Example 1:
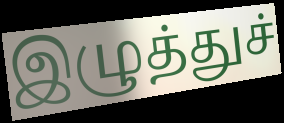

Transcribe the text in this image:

இழுத்துச்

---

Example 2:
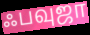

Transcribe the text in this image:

ஃபவுஜா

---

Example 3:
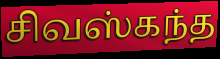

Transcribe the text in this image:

சிவஸ்கந்த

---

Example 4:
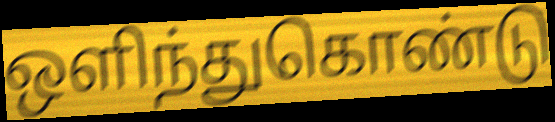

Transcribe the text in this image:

ஒளிந்துகொண்டு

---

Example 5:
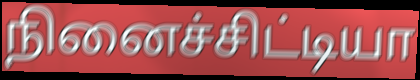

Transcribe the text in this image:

நினைச்சிட்டியா